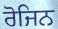
ਰੋਜਿਨ